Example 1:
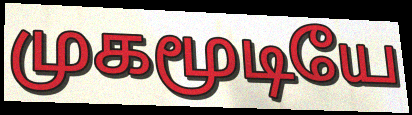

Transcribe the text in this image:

முகமூடியே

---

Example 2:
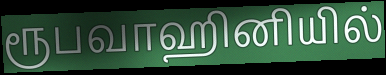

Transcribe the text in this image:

ரூபவாஹினியில்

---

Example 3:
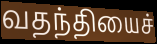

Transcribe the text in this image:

வதந்தியைச்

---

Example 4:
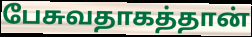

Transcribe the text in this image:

பேசுவதாகத்தான்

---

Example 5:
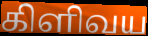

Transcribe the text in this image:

கிளிவய